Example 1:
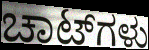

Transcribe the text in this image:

ಚಾಟ್‌ಗಳು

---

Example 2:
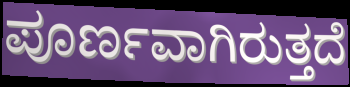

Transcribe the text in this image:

ಪೂರ್ಣವಾಗಿರುತ್ತದೆ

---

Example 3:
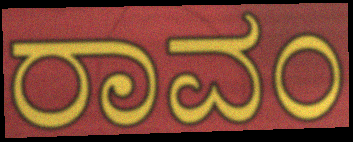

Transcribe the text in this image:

ರಾವಂ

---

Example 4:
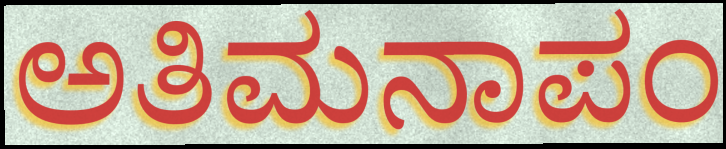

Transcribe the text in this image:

ಅತಿಮನಾಪಂ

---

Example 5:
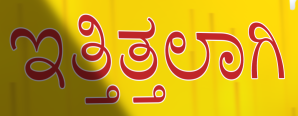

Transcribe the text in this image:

ಇತ್ತಿತ್ತಲಾಗಿ